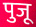
पुजू